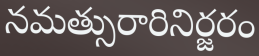
నమత్సురారినిర్జరం